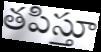
తపిస్తూ